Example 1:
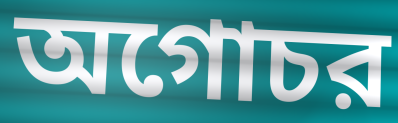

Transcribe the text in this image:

অগোচর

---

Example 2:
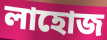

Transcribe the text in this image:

লাহোজ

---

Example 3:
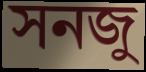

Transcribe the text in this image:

সনজু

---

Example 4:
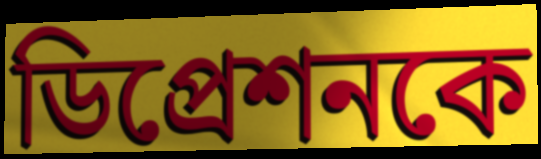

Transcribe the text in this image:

ডিপ্রেশনকে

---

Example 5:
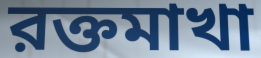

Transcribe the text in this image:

রক্তমাখা